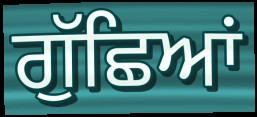
ਗੁੱਛਿਆਂ